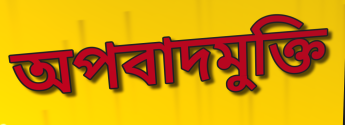
অপবাদমুক্তি